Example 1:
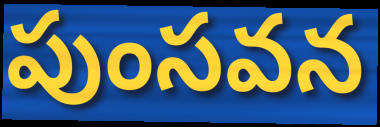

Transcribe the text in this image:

పుంసవన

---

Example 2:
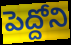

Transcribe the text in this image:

పెద్దోని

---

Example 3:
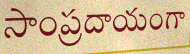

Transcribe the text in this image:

సాంప్రదాయంగా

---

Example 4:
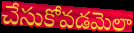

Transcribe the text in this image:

చేసుకోవడమెలా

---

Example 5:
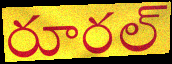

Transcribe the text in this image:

రూరల్